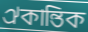
ঐকান্তিক